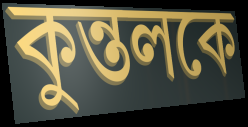
কুন্তলকে